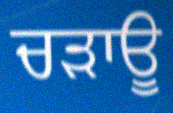
ਚੜਾਊ